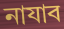
নাযাব